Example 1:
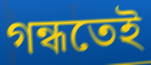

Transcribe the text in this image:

গন্ধতেই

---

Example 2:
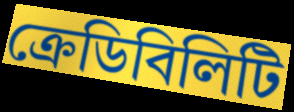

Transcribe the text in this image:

ক্রেডিবিলিটি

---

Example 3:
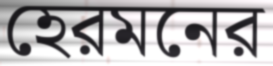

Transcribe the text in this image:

হেরমনের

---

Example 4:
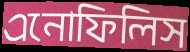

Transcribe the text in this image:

এনোফিলিস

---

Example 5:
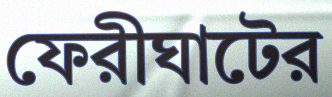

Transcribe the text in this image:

ফেরীঘাটের